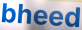
bheed